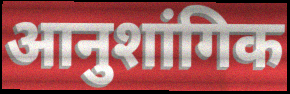
आनुशांगिक